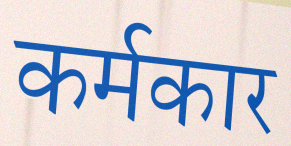
कर्मकार